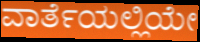
ವಾರ್ತೆಯಲ್ಲಿಯೇ